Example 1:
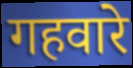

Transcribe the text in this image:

गहवारे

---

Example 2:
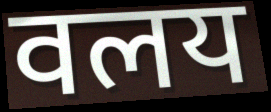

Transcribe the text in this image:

वलय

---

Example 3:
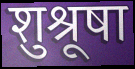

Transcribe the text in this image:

शुश्रूषा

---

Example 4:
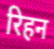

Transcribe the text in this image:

रिहन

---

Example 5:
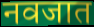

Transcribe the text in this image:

नवजात